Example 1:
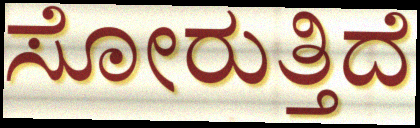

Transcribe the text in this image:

ಸೋರುತ್ತಿದೆ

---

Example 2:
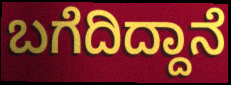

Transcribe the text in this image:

ಬಗೆದಿದ್ದಾನೆ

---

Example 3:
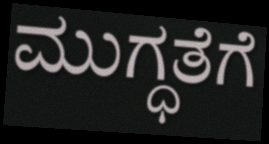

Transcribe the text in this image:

ಮುಗ್ಧತೆಗೆ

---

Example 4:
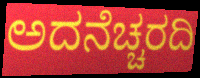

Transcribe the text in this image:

ಅದನೆಚ್ಚರದಿ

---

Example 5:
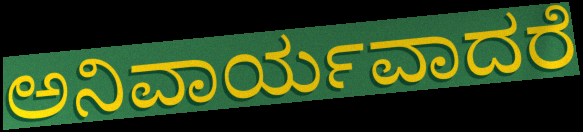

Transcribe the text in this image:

ಅನಿವಾರ್ಯವಾದರೆ